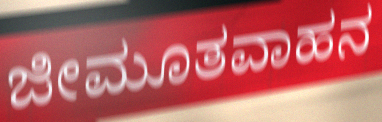
ಜೀಮೂತವಾಹನ